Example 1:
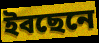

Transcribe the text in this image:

ইবছেনে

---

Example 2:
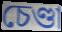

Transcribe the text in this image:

চেণ্ডা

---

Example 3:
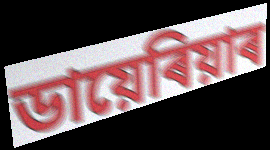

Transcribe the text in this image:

ডায়েৰিয়াৰ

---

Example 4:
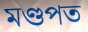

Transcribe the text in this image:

মণ্ডপত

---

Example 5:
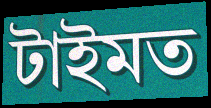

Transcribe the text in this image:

টাইমত